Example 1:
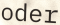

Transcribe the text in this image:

oder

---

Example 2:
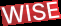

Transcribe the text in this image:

WISE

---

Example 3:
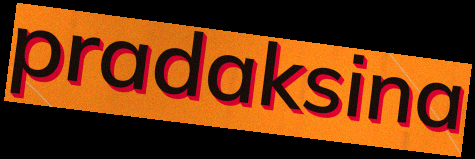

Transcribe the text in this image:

pradaksina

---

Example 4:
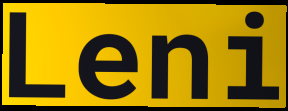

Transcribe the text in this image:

Leni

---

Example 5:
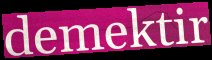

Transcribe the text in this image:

demektir